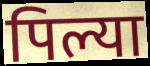
पिल्या